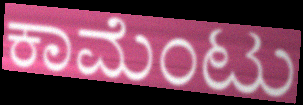
ಕಾಮೆಂಟು